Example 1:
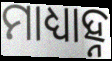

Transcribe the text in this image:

ମାଧ୍ୟାହ୍ନ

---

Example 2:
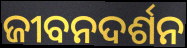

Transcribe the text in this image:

ଜୀବନଦର୍ଶନ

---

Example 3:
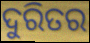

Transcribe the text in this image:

ଦୁରିତର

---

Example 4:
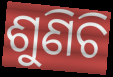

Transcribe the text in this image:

ଶୁଣିଚି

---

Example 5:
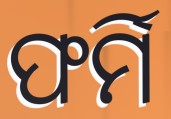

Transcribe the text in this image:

ଫର୍ମି